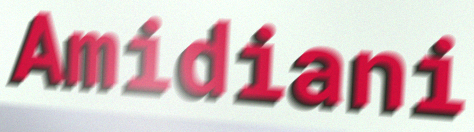
Amidiani